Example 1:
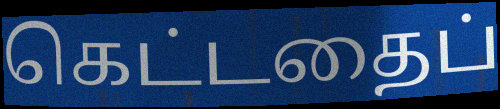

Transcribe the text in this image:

கெட்டதைப்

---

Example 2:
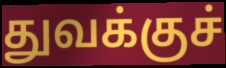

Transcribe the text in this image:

துவக்குச்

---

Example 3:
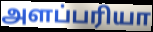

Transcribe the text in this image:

அளப்பரியா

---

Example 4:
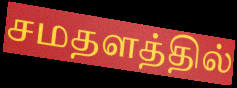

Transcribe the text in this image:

சமதளத்தில்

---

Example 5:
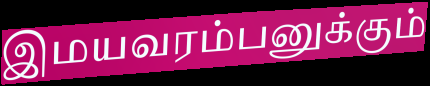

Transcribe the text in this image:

இமயவரம்பனுக்கும்